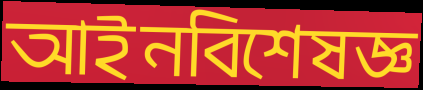
আইনবিশেষজ্ঞ